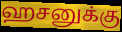
ஹசனுக்கு